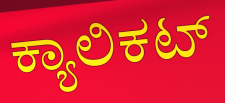
ಕ್ಯಾಲಿಕಟ್